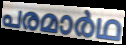
പരമാർഥ